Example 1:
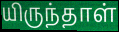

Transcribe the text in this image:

யிருந்தாள்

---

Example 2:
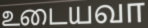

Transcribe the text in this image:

உடையவா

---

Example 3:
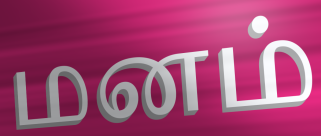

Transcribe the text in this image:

மனம்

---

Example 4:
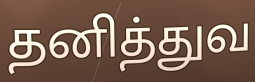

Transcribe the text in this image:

தனித்துவ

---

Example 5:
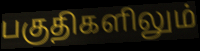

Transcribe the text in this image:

பகுதிகளிலும்